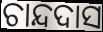
ଚାନ୍ଦଦାସ